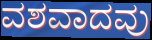
ವಶವಾದವು